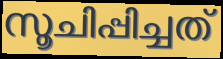
സൂചിപ്പിച്ചത്